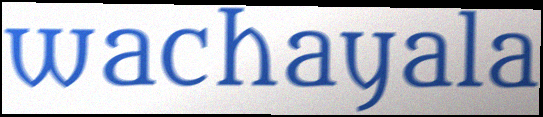
wachayala